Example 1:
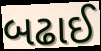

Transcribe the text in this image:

બઢાઈ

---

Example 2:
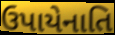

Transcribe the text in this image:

ઉપાયેનાતિ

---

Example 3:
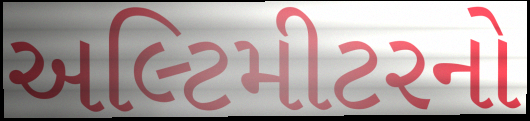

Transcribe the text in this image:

અલ્ટિમીટરનો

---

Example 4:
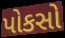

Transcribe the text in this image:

પોકસો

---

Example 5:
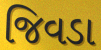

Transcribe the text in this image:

જિવડા